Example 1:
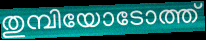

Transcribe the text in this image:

തുമ്പിയോടോത്ത്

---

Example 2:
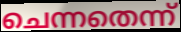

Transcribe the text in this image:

ചെന്നതെന്ന്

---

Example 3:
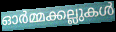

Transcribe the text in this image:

ഓർമ്മക്കല്ലുകൾ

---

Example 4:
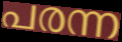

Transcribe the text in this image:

പരന്ന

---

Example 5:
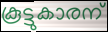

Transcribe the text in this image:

കൂട്ടുകാരന്